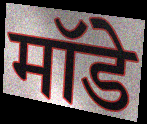
मॉडे